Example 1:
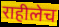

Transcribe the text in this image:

राहीलेच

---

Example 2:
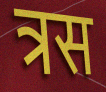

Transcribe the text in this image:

त्रस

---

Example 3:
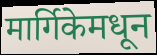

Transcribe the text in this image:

मार्गिकेमधून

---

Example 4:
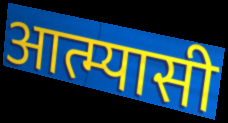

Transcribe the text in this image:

आत्म्यासी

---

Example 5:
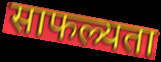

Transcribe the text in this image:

साफल्यता